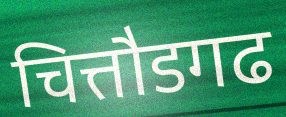
चित्तौडगढ